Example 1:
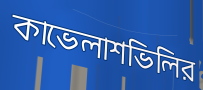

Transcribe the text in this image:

কাভেলাশভিলির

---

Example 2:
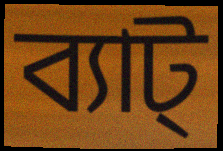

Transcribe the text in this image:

ব্যাট্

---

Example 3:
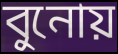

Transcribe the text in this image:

বুনোয়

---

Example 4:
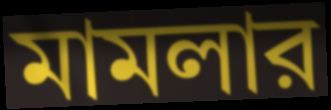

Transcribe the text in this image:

মামলার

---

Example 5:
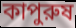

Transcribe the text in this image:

কাপুরুষ